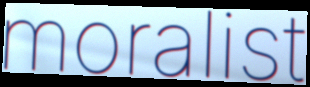
moralist